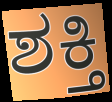
ಶಕ್ತಿ